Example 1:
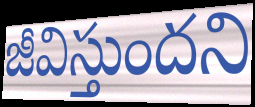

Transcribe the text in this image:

జీవిస్తుందని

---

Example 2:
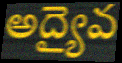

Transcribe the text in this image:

అద్యైవ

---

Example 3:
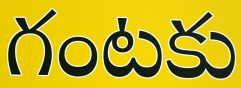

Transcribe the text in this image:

గంటకు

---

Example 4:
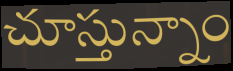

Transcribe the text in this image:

చూస్తున్నాం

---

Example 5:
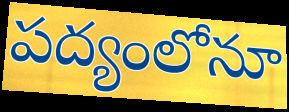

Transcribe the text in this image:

పద్యంలోనూ